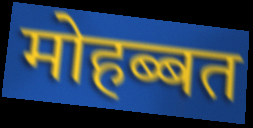
मोहब्‍बत